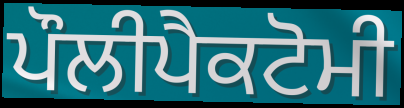
ਪੌਲੀਪੈਕਟੋਮੀ